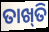
ତାଖ୍‍ତି